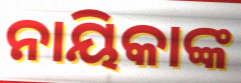
ନାୟିକାଙ୍କ